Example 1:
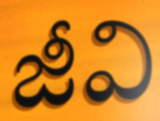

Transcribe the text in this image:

జీవి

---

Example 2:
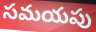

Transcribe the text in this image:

సమయపు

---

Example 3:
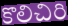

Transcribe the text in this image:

కొలిచిరి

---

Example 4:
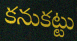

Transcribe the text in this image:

కనుకట్టు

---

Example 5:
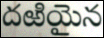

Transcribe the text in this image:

దఱియైన